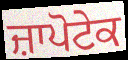
ਜ਼ਾਪੋਟੇਕ